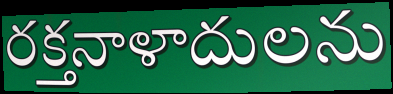
రక్తనాళాదులను